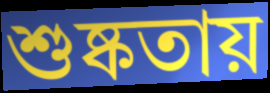
শুষ্কতায়